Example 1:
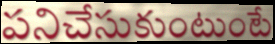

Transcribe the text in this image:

పనిచేసుకుంటుంటే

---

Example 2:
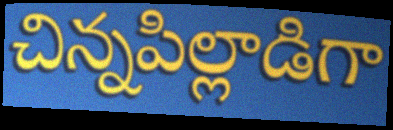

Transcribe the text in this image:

చిన్నపిల్లాడిగా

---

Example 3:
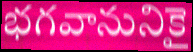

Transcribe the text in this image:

భగవానునికై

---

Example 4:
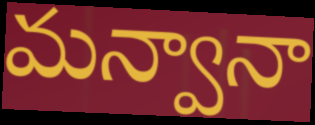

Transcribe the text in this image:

మన్వానా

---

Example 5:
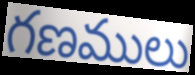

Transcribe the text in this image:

గణములు